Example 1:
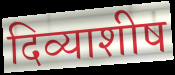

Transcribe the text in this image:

दिव्याशीष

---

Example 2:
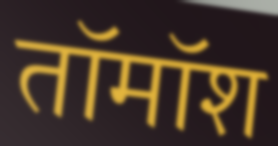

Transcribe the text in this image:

तॉमॉश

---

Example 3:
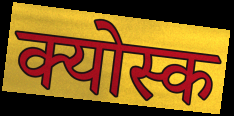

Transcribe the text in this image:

क्योस्क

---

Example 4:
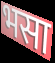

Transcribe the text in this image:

भसा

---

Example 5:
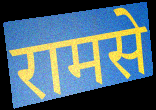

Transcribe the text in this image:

रामसे